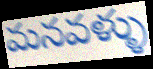
మనవళ్ళు